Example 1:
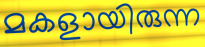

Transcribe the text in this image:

മകളായിരുന്ന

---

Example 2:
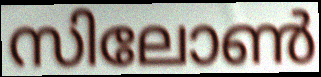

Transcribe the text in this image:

സിലോൺ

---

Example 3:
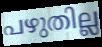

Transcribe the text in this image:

പഴുതില്ല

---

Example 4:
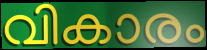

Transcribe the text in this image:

വികാരം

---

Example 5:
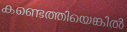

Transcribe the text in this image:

കണ്ടെത്തിയെങ്കിൽ